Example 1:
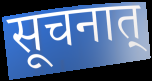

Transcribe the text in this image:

सूचनात्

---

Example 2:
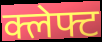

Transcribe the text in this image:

क्लेफ्ट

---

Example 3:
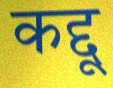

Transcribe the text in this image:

कद्दू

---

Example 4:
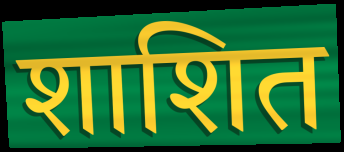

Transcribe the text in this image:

शाशित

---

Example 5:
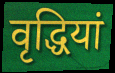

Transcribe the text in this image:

वृद्धियां